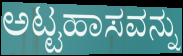
ಅಟ್ಟಹಾಸವನ್ನು